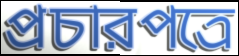
প্রচারপত্রে